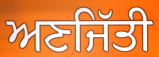
ਅਣਜਿੱਤੀ